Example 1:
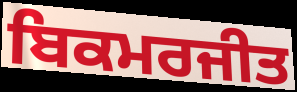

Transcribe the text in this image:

ਬਿਕਮਰਜੀਤ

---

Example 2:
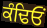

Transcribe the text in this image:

ਕੰਢਿਓਂ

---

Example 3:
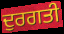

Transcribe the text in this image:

ਦੁਰਗਤੀ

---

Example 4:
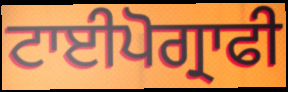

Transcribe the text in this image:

ਟਾਈਪੋਗ੍ਰਾਫੀ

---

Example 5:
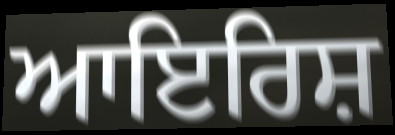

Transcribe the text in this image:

ਆਇਰਿਸ਼